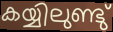
കയ്യിലുണ്ടു്